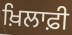
ਖ਼ਿਲਾਫ਼ੀ